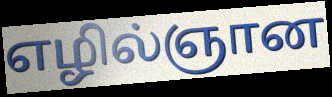
எழில்ஞான